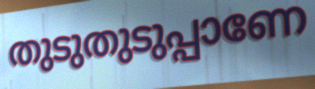
തുടുതുടുപ്പാണേ